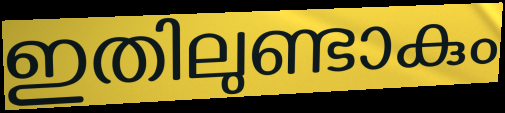
ഇതിലുണ്ടാകും